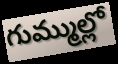
గుమ్ముల్లో